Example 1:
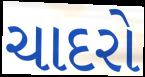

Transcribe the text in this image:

ચાદરો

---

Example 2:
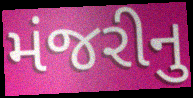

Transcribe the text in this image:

મંજરીનુ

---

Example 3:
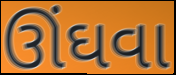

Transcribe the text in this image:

ઊંઘવા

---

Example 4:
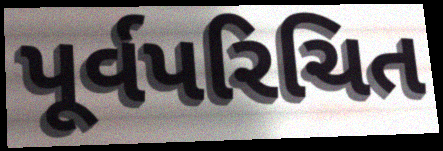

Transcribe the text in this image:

પૂર્વપરિચિત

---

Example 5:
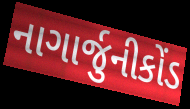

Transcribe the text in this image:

નાગાર્જુનીકોંડ